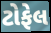
ટોફેલ